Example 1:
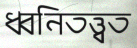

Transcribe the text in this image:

ধ্বনিতত্ত্বত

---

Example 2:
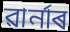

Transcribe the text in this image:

ৱাৰ্নাৰ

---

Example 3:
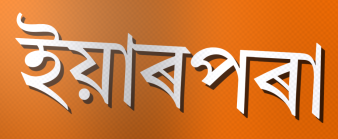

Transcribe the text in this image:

ইয়াৰপৰা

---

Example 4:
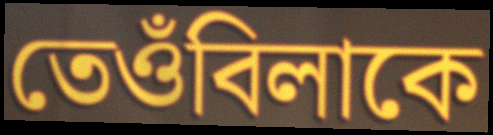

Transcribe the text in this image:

তেওঁবিলাকে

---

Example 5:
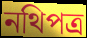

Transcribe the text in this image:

নথিপত্ৰ